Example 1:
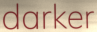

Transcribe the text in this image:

darker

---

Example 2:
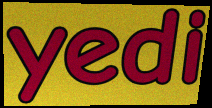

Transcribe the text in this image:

yedi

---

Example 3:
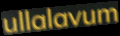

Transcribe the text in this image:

ullalavum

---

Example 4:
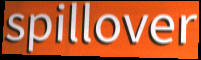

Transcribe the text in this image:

spillover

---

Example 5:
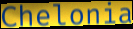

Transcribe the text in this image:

Chelonia